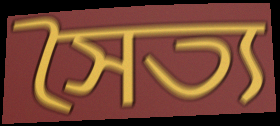
সৈত্য